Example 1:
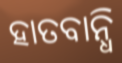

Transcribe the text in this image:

ହାତବାନ୍ଧି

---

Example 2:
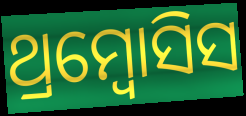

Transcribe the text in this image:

ଥ୍ରମ୍ବୋସିସ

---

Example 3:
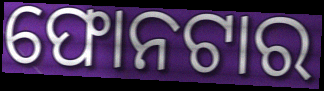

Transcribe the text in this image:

ଫୋନଟାର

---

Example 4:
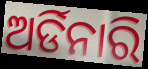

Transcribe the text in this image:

ଅର୍ଡିନାରି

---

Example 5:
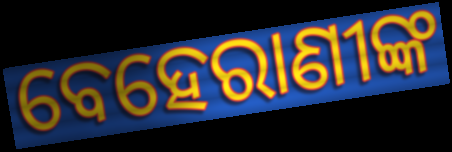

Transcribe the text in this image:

ବେହେରାଣୀଙ୍କ